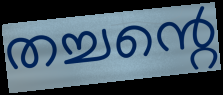
തച്ചന്റെ